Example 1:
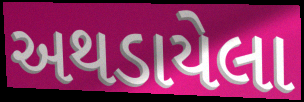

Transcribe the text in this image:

અથડાયેલા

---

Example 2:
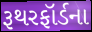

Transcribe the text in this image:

રૂથરફૉર્ડના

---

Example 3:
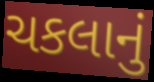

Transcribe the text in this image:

ચકલાનું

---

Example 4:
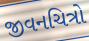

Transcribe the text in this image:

જીવનચિત્રો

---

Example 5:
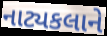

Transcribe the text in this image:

નાટ્યકલાને